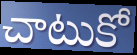
చాటుకో